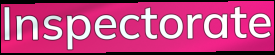
Inspectorate